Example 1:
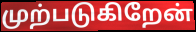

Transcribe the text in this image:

முற்படுகிறேன்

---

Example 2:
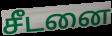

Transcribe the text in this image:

சீடனை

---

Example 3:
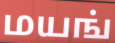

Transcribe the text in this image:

மயங்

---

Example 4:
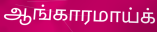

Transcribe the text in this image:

ஆங்காரமாய்க்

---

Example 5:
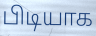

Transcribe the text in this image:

பிடியாக